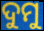
ଦୁମୁ